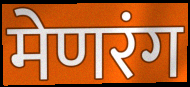
मेणरंग